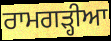
ਰਾਮਗੜ੍ਹੀਆ